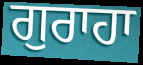
ਗੁਰਾਹਾ